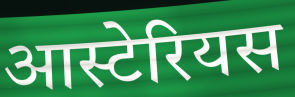
आस्टेरियस